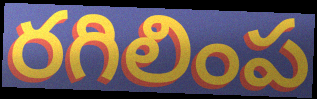
రగిలింప